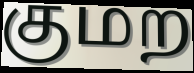
குமற